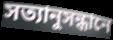
সত্যানুসন্ধানে